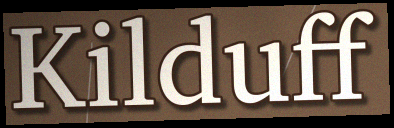
Kilduff